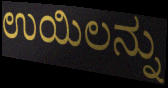
ಉಯಿಲನ್ನು